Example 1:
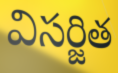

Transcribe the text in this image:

విసర్జిత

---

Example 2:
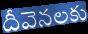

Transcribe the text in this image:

దీవెనలకు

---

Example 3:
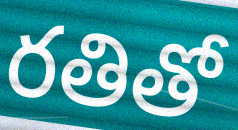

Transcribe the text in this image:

రతితో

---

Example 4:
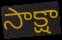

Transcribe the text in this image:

సాక్షా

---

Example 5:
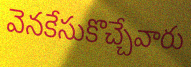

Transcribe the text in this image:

వెనకేసుకొచ్చేవారు